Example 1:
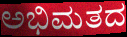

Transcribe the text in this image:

ಅಭಿಮತದ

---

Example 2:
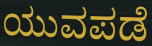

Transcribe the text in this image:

ಯುವಪಡೆ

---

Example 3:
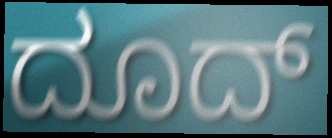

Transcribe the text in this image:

ದೂದ್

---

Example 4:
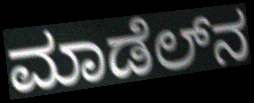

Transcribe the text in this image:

ಮಾಡೆಲ್‌ನ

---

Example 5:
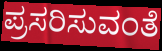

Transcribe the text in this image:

ಪ್ರಸರಿಸುವಂತೆ